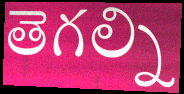
తెగల్ని